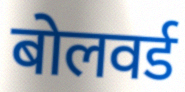
बोलवर्ड